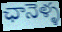
ఛానెళ్ళ